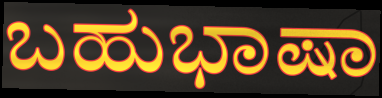
ಬಹುಭಾಷಾ